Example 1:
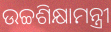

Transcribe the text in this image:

ଉଚ୍ଚଶିକ୍ଷାମନ୍ତ୍ରୀ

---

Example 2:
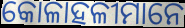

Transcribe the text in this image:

କୋଳାହଳୀମାନେ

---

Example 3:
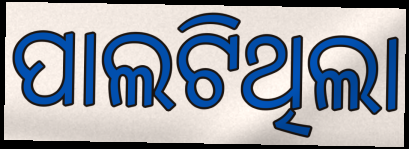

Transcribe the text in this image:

ପାଲଟିଥିଲା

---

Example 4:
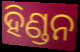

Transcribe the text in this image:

ହିଣ୍ଡନ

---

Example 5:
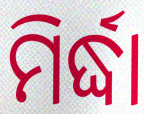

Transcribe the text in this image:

ମିର୍ଦ୍ଧା